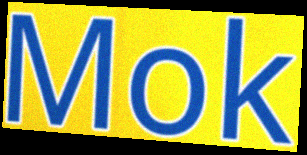
Mok